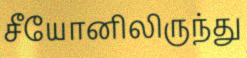
சீயோனிலிருந்து